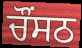
ਚੌਂਸਠ